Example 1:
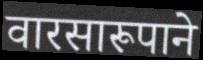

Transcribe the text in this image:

वारसारूपाने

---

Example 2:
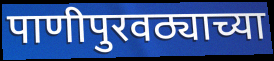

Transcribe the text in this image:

पाणीपुरवठ्याच्या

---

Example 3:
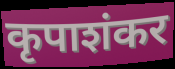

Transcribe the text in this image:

कृपाशंकर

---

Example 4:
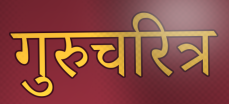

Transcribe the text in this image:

गुरुचरित्र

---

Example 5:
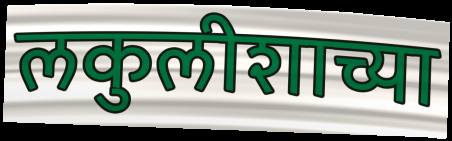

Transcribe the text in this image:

लकुलीशाच्या